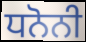
ਧਨੋਨੀ